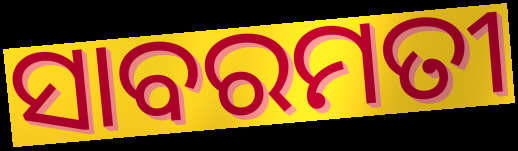
ସାବରମତୀ